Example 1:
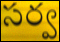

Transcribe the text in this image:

సర్వ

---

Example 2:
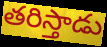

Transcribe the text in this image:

తరిస్తాడు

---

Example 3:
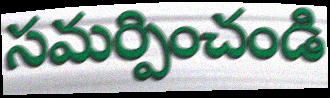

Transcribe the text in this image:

సమర్పించండి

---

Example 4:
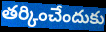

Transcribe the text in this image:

తర్కించేందుకు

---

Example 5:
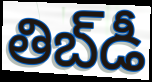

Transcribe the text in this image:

తిబ్‌డీ